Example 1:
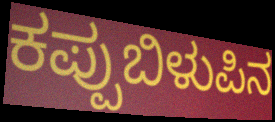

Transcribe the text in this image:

ಕಪ್ಪುಬಿಳುಪಿನ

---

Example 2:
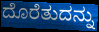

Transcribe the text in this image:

ದೊರೆತುದನ್ನು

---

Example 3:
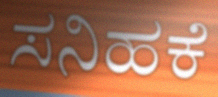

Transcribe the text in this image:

ಸನಿಹಕೆ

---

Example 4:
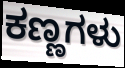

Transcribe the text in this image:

ಕಣ್ಣಗಳು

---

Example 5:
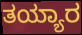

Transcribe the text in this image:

ತಯ್ಯಾರ